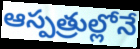
ఆస్పత్రుల్లోనే